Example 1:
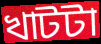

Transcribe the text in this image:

খাটটা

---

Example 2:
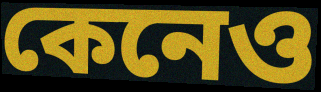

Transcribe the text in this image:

কেনেও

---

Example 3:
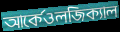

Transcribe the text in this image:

আর্কেওলজিক্যাল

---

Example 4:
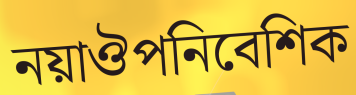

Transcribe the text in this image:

নয়াঔপনিবেশিক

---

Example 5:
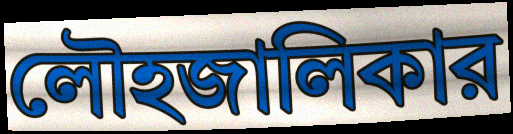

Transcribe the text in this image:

লৌহজালিকার